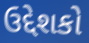
ઉદ્દેશકો